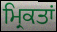
ਮ੍ਰਿਕਤਾਂ